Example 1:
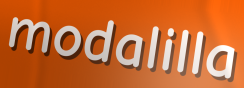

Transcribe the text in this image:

modalilla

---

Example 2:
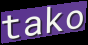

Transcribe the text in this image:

tako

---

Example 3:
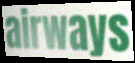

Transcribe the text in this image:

airways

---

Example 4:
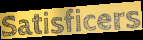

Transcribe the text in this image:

Satisficers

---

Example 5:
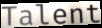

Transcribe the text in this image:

Talent